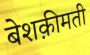
बेशक़ीमती